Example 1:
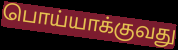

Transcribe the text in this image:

பொய்யாக்குவது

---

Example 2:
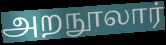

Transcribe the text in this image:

அறநூலார்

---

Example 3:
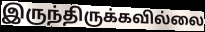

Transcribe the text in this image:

இருந்திருக்கவில்லை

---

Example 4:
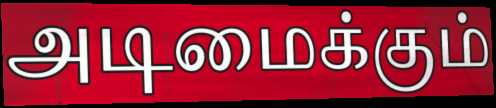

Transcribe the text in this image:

அடிமைக்கும்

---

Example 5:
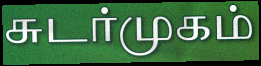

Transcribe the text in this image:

சுடர்முகம்